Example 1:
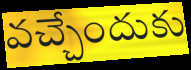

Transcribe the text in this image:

వచ్చేందుకు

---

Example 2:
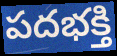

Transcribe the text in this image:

పదభక్తి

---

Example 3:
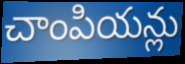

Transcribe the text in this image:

చాంపియన్లు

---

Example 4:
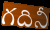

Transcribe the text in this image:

గదినీ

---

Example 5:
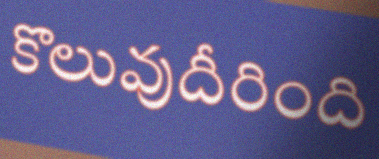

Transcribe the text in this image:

కొలువుదీరింది